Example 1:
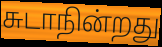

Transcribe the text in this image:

சுடாநின்றது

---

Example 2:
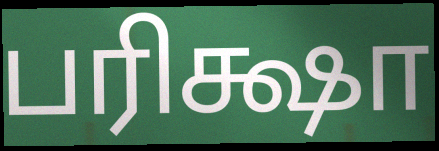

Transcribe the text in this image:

பரிக்ஷா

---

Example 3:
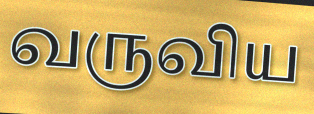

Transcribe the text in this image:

வருவிய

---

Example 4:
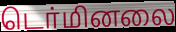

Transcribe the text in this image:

டெர்மினலை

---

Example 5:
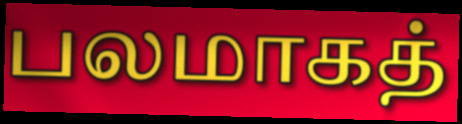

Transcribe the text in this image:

பலமாகத்